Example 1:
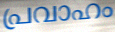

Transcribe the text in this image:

പ്രവാഹം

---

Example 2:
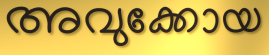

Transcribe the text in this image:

അവുക്കോയ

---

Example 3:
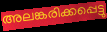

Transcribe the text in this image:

അലങ്കരിക്കപ്പെട്ടു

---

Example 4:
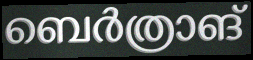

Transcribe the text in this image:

ബെർത്രാങ്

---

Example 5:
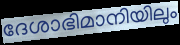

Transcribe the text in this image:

ദേശാഭിമാനിയിലും